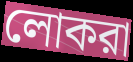
লোকরা